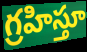
గ్రహిస్తూ